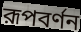
রূপবর্ণন